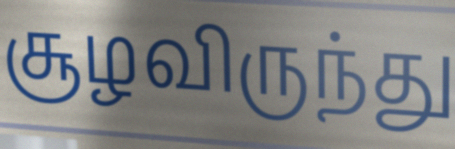
சூழவிருந்து